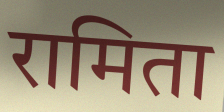
रामिता